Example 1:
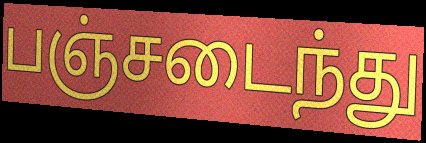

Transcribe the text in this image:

பஞ்சடைந்து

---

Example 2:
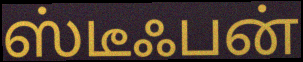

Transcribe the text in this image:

ஸ்டீஃபன்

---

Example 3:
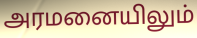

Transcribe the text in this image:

அரமனையிலும்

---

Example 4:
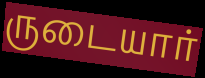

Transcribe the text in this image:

ருடையார்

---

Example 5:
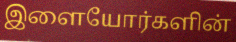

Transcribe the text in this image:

இளையோர்களின்